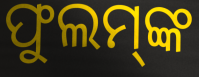
ଫୁଲମ୍‌ଙ୍କ